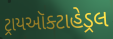
ટ્રાયઑક્ટાહેડ્રલ